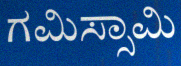
ಗಮಿಸ್ಸಾಮಿ